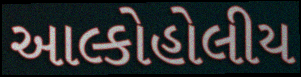
આલ્કોહોલીય